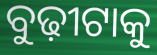
ବୁଢ଼ୀଟାକୁ